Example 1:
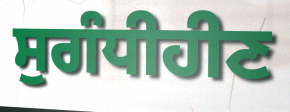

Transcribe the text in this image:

ਸੁਗੰਧੀਹੀਣ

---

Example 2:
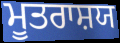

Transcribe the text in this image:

ਮੂਤਰਾਸ਼ਯ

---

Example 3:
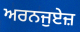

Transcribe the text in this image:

ਅਰਨਜੁਏਜ਼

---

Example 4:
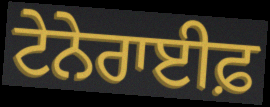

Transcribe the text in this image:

ਟੇਨੇਰਾਈਫ਼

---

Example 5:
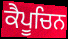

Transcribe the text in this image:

ਕੈਪੂਚਿਨ